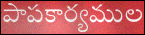
పాపకార్యముల